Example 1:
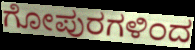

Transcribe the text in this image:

ಗೋಪುರಗಳಿಂದ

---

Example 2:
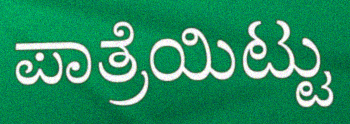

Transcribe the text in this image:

ಪಾತ್ರೆಯಿಟ್ಟು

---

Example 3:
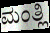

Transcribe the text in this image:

ಮಂತ್ಲಿ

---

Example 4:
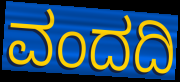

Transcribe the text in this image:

ವಂದದಿ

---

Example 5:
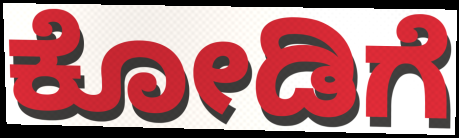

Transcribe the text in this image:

ಕೋಡಿಗೆ